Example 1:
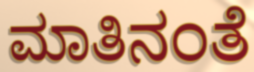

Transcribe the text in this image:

ಮಾತಿನಂತೆ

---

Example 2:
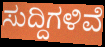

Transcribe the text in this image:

ಸುದ್ದಿಗಳಿವೆ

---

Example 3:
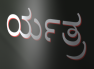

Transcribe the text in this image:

ರ್ಯತ್ರ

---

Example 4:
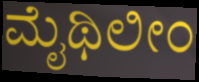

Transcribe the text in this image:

ಮೈಥಿಲೀಂ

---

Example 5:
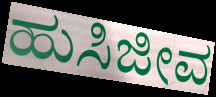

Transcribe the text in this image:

ಹುಸಿಜೀವ